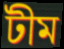
টীম